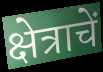
क्षेत्राचें